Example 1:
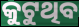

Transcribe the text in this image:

କୁଟୁଥିବ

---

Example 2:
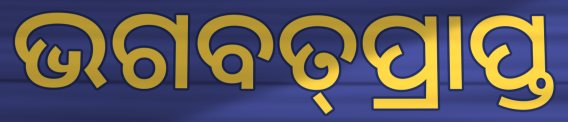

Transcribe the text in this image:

ଭଗବତ୍‌ପ୍ରାପ୍ତ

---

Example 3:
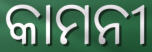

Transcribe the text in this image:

କାମନୀ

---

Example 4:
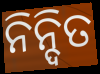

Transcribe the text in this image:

ନିନ୍ଦିତ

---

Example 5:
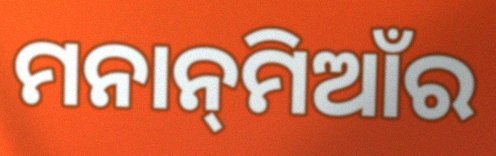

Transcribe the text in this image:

ମନାନ୍‌ମିଆଁର